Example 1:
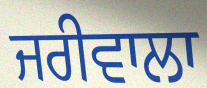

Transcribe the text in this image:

ਜਰੀਵਾਲਾ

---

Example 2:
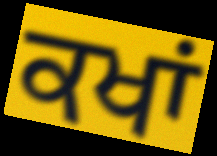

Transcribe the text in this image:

ਕਖਾਂ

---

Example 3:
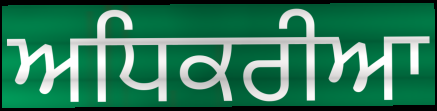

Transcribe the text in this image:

ਅਧਿਕਰੀਆ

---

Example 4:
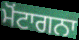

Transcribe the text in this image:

ਮੋਂਟਾਗਨਾ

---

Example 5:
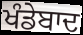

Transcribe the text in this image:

ਖੰਡੇਬਾਦ